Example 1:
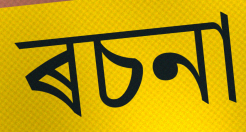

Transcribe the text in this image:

ৰচনা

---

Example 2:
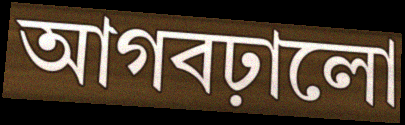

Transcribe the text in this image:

আগবঢ়ালো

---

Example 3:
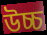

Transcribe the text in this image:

উচ্চ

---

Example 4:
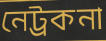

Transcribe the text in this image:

নেট্ৰকনা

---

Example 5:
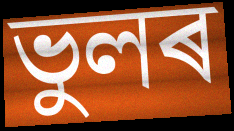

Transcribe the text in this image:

ভুলৰ